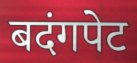
बदंगपेट